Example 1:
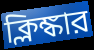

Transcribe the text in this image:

ক্লিঙ্কার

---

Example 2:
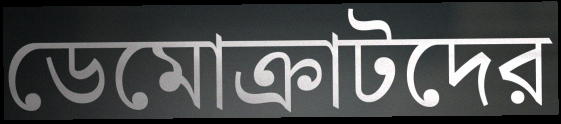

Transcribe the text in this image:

ডেমোক্রাটদের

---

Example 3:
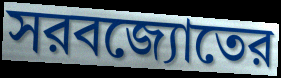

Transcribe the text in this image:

সরবজ্যোতের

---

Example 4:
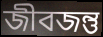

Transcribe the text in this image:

জীবজন্তু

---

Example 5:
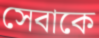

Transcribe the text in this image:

সেবাকে